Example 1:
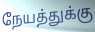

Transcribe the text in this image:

நேயத்துக்கு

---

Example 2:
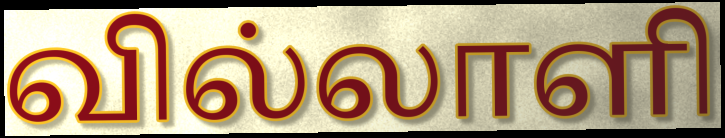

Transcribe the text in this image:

வில்லாளி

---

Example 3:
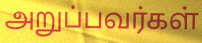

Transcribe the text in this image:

அறுப்பவர்கள்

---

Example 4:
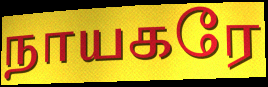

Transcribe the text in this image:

நாயகரே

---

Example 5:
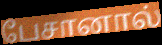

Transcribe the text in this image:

பேசானால்